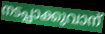
നടപ്പാക്കുവാന്